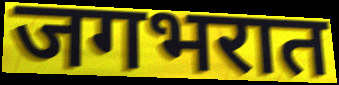
जगभरात